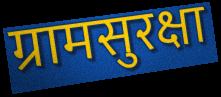
ग्रामसुरक्षा